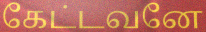
கேட்டவனே